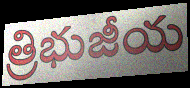
త్రిభుజీయ